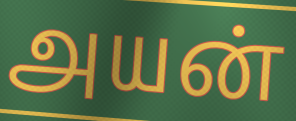
அயன்